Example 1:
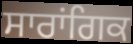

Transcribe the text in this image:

ਸਾਰਾਂਗਿਕ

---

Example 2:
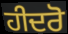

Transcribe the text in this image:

ਹੀਦਰੋ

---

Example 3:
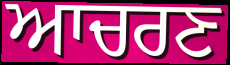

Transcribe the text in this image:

ਆਚਰਣ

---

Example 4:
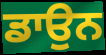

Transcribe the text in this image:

ਡਾਉਨ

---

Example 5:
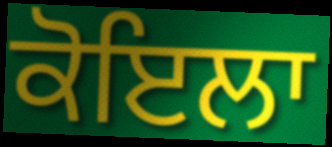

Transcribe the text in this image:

ਕੋਇਲਾ